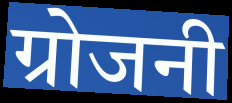
ग्रोजनी